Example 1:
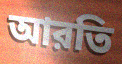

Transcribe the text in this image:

আরতি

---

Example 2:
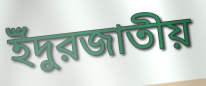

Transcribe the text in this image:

ইঁদুরজাতীয়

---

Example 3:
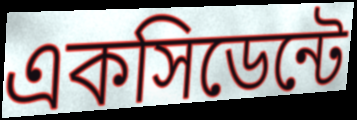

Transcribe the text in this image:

একসিডেন্টে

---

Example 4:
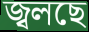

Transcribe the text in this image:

জ্বলছে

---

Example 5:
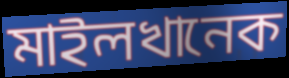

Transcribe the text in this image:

মাইলখানেক